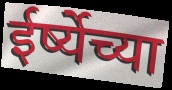
ईर्ष्येच्या